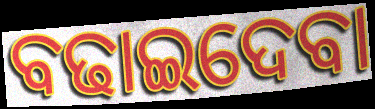
ବଢାଇଦେବା